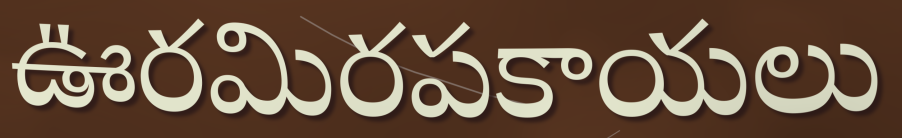
ఊరమిరపకాయలు